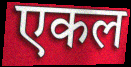
एकल